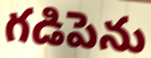
గడిపెను